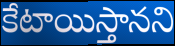
కేటాయిస్తానని